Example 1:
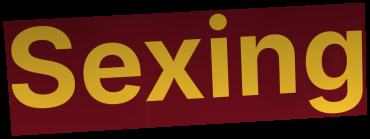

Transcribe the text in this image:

Sexing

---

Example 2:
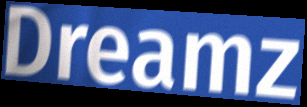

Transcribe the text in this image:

Dreamz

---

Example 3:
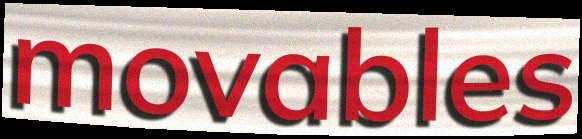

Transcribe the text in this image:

movables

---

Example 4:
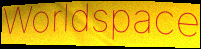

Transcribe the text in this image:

Worldspace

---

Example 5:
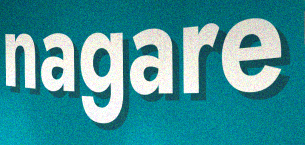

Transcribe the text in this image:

nagare